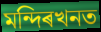
মন্দিৰখনত